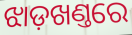
ଝାଡ଼ଖଣ୍ତରେ